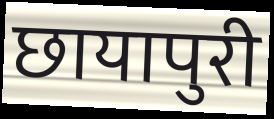
छायापुरी